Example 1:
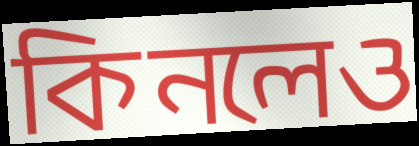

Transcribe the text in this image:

কিনলেও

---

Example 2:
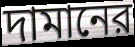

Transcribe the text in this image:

দামানের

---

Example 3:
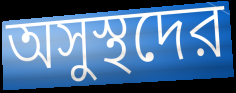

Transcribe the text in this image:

অসুস্থদের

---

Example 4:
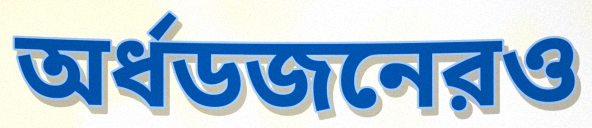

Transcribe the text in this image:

অর্ধডজনেরও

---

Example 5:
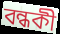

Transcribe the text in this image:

বন্ধকী